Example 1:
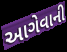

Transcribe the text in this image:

આગેવાની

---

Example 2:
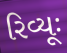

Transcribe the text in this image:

રિવ્યૂઃ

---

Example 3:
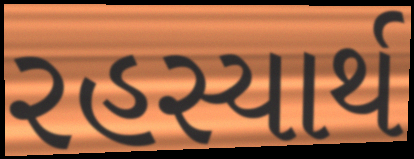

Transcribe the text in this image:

રહસ્યાર્થ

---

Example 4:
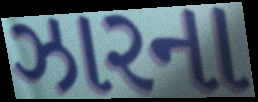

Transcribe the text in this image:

ઝારના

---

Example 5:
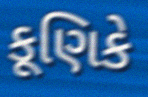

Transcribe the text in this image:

કૂણિકે